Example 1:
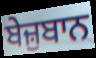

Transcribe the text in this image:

ਬੇਜ਼ੁਬਾਨ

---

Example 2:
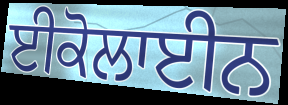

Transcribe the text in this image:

ਈਕੋਲਾਈਨ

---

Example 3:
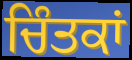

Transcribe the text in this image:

ਚਿੰਤਕਾਂ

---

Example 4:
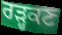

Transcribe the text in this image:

ਰੜ੍ਹਕਣ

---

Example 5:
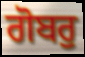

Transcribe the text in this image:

ਗੋਬਰੁ